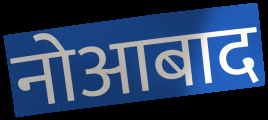
नोआबाद